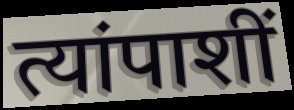
त्यांपाशीं